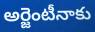
అర్జెంటీనాకు